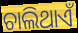
ଚାଲିଥାଏଁ